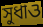
সুধাও